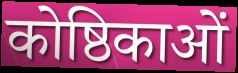
कोष्ठिकाओं